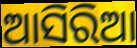
ଆସିରିଆ